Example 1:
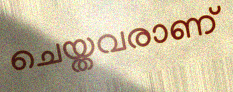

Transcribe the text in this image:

ചെയ്തവരാണ്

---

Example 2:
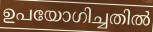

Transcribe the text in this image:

ഉപയോഗിച്ചതിൽ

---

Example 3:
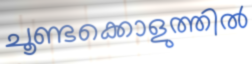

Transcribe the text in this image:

ചൂണ്ടക്കൊളുത്തിൽ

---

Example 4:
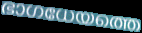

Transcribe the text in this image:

ഭാഗധേയത്തെ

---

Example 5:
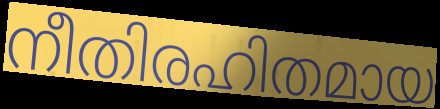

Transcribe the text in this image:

നീതിരഹിതമായ